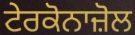
ਟੇਰਕੋਨਾਜ਼ੋਲ